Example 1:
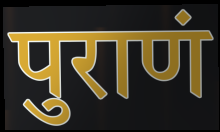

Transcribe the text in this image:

पुराणं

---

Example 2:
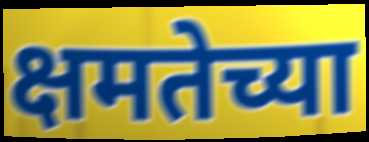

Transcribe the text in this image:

क्षमतेच्या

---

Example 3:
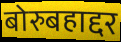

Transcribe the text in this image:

बोरुबहाद्दर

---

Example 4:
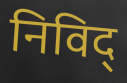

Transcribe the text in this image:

निविद्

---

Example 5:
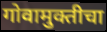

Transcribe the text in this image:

गोवामुक्तीचा